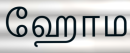
ஹோம